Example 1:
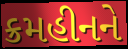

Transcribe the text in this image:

ક્રમહીનને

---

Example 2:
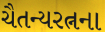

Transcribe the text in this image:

ચૈતન્યરત્નના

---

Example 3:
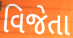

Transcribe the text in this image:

વિજેતા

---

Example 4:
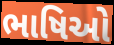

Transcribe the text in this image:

ભાષિઓ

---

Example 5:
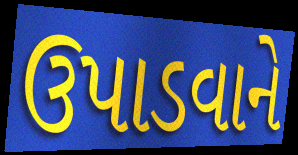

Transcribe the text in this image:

ઉપાડવાને